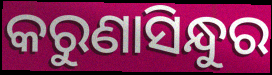
କରୁଣାସିନ୍ଧୁର